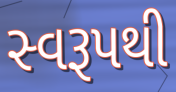
સ્વરૂપથી